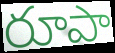
రూపా